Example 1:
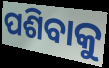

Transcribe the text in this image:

ପଶିବାକୁ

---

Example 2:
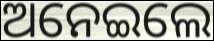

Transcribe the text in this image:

ଅନେଇଲେ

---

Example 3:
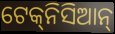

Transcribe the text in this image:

ଟେକ୍‌ନିସିଆନ୍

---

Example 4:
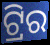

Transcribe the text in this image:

ଟ୍ରିର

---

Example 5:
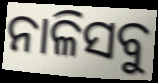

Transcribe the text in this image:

ନାଳିସବୁ